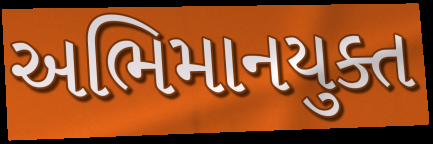
અભિમાનયુક્ત